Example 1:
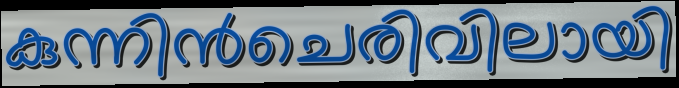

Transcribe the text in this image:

കുന്നിൻചെരിവിലായി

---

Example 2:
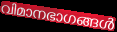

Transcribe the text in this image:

വിമാനഭാഗങ്ങൾ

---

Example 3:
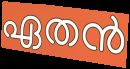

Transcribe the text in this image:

ഏതൻ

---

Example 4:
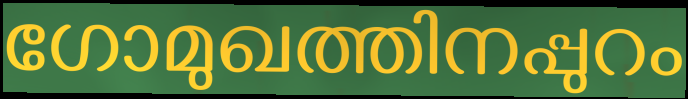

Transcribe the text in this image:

ഗോമുഖത്തിനപ്പുറം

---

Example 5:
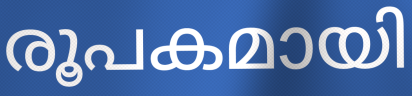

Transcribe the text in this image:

രൂപകമായി